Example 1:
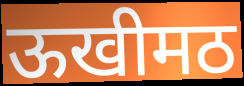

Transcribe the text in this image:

ऊखीमठ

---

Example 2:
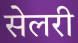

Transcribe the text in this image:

सेलरी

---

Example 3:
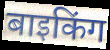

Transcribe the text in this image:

बाइकिंग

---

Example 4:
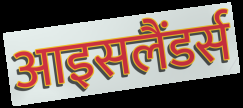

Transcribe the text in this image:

आइसलैंडर्स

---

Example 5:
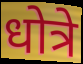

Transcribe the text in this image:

धोत्रे